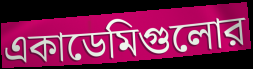
একাডেমিগুলোর